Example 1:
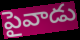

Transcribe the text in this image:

పైవాడు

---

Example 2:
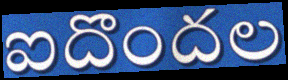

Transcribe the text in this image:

ఐదొందల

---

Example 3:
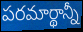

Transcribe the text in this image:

పరమార్థాన్నీ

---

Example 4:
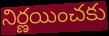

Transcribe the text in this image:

నిర్ణయించకు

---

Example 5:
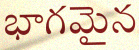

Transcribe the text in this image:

భాగమైన